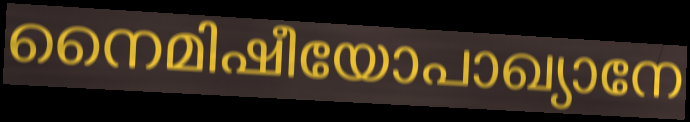
നൈമിഷീയോപാഖ്യാനേ